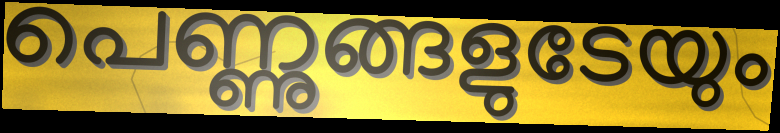
പെണ്ണുങ്ങളുടേയും